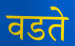
वडते